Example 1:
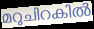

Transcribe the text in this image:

മറുചിറകിൽ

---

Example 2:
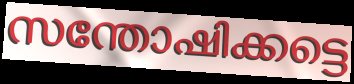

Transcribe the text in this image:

സന്തോഷിക്കട്ടെ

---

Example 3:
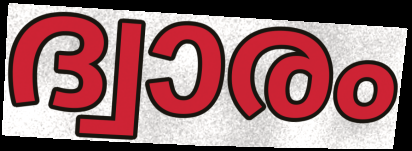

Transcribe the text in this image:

ദ്വാരം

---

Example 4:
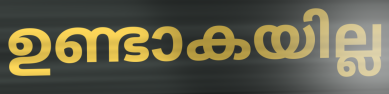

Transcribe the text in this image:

ഉണ്ടാകയില്ല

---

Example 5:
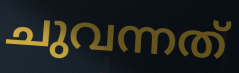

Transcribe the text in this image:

ചുവന്നത്